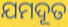
ଯମଦୂତ